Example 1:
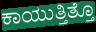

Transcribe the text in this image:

ಕಾಯುತ್ತಿತ್ತೊ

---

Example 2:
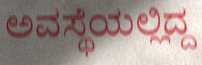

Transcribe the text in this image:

ಅವಸ್ಥೆಯಲ್ಲಿದ್ದ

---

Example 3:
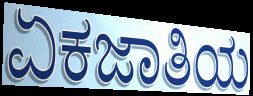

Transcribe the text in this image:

ಏಕಜಾತಿಯ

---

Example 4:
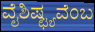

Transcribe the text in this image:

ವೈಶಿಷ್ಟ್ಯವೆಂಬ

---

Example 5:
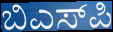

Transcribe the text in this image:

ಬಿಎಸ್‌ಪಿ